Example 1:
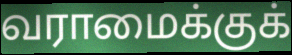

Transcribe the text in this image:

வராமைக்குக்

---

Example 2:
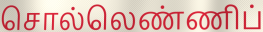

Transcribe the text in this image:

சொல்லெண்ணிப்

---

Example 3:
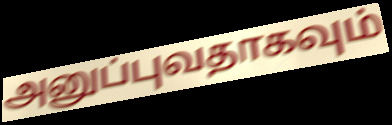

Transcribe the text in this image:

அனுப்புவதாகவும்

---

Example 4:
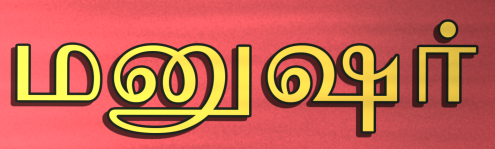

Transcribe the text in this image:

மனுஷர்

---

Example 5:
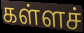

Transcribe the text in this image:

கள்ளச்